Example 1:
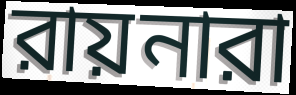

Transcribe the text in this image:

রায়নারা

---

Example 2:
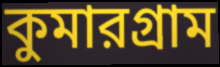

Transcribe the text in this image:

কুমারগ্রাম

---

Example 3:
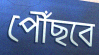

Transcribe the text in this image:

পৌঁছবে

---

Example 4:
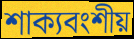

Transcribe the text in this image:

শাক্যবংশীয়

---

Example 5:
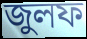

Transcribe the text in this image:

জুলফ